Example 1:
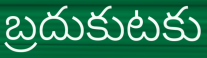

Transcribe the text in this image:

బ్రదుకుటకు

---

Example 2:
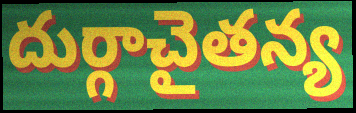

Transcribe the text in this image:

దుర్గాచైతన్య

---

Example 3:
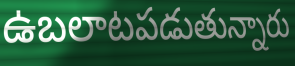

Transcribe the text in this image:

ఉబలాటపడుతున్నారు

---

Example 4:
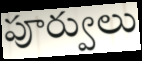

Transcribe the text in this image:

పూర్వులు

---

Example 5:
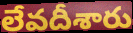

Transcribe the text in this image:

లేవదీశారు